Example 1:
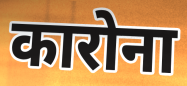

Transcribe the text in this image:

कारोना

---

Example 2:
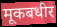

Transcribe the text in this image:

मूकबधीर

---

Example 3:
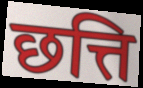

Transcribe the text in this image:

छत्ति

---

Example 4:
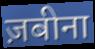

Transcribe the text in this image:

ज़बीना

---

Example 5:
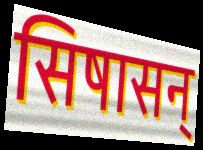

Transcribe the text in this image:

सिषासन्